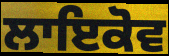
ਲਾਇਕੋਵ